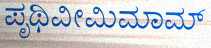
ಪೃಥಿವೀಮಿಮಾಮ್